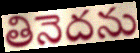
తినెదను